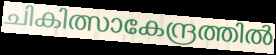
ചികിത്സാകേന്ദ്രത്തിൽ